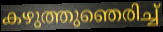
കഴുത്തുഞെരിച്ച്